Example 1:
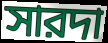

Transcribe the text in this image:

সারদা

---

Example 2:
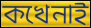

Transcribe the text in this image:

কখেনাই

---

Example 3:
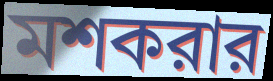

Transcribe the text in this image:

মশকরার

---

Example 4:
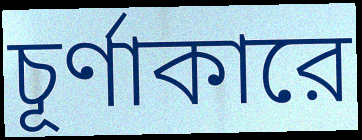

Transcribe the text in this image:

চূর্ণাকারে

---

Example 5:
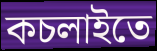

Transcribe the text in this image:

কচলাইতে